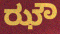
ಝೌ